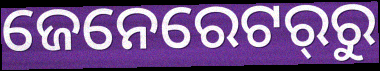
ଜେନେରେଟର୍‌ରୁ